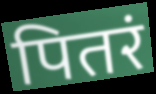
पितरं